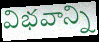
విభవాన్ని